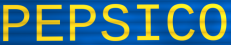
PEPSICO